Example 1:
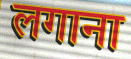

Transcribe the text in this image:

लगाना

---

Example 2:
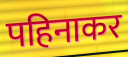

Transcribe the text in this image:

पहिनाकर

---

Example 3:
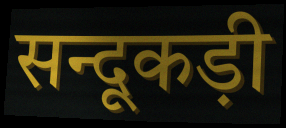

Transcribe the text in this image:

सन्दूकड़ी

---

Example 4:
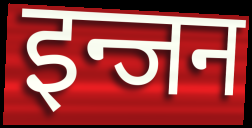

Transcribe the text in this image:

इन्जन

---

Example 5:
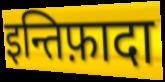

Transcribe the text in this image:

इन्तिफ़ादा